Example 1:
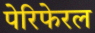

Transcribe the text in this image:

पेरिफेरल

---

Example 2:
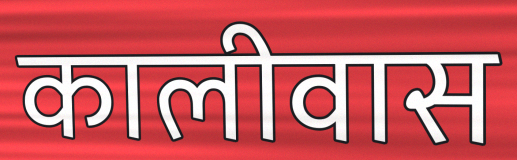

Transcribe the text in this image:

कालीवास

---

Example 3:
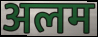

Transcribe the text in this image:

अलम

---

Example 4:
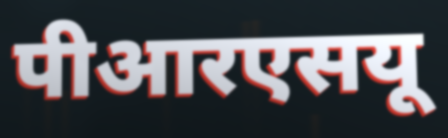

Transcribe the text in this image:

पीआरएसयू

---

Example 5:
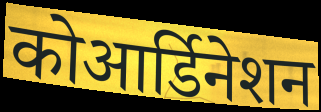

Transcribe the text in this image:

कोआर्डिनेशन